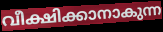
വീക്ഷിക്കാനാകുന്ന